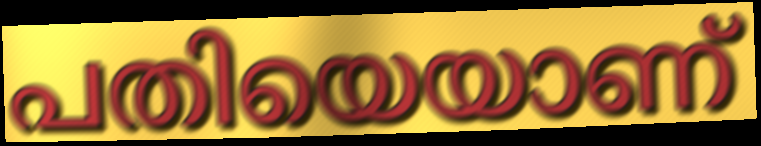
പതിയെയാണ്